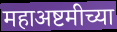
महाअष्टमीच्या